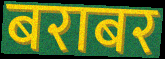
बराबर